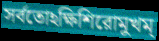
সর্বতোঽক্ষিশিরোমুখম্